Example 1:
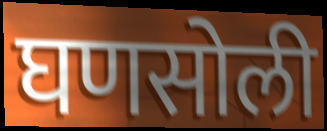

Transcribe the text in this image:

घणसोली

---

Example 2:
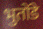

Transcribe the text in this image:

भुतोंडे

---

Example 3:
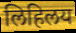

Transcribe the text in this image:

लिहिलय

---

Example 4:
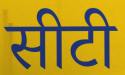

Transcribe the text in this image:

सीटी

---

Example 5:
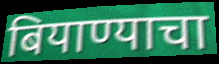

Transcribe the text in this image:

बियाण्याचा